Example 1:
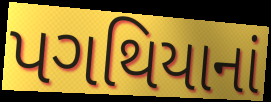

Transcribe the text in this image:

પગથિયાનાં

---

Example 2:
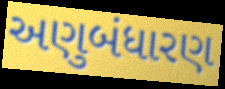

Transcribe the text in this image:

અણુબંધારણ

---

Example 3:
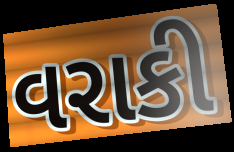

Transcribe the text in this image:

વરાકી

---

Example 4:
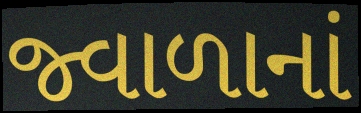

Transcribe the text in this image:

જ્વાળાનાં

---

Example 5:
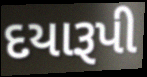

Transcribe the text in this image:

દયારૂપી